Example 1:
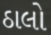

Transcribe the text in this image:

ઠાલો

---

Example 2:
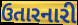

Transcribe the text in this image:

ઉતારનારી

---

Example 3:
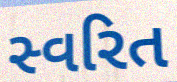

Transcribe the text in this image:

સ્વરિત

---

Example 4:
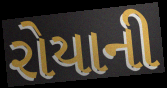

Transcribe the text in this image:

રોયાની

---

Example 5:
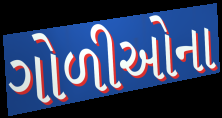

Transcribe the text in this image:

ગોળીઓના